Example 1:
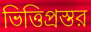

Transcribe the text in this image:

ভিত্তিপ্রস্তর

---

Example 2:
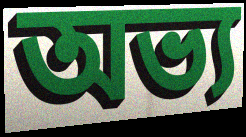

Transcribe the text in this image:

অভ্য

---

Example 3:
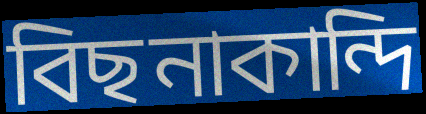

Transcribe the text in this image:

বিছনাকান্দি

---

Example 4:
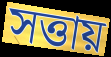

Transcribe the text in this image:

সত্তায়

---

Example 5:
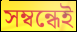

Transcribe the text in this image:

সম্বন্ধেই